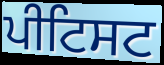
ਪੀਟਿਸਟ